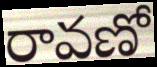
రావణో